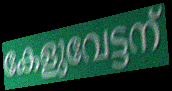
കേളുവേട്ടന്